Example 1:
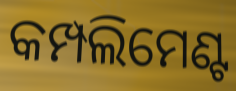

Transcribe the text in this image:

କମ୍ପଲିମେଣ୍ଟ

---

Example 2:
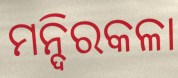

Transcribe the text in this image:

ମନ୍ଦିରକଳା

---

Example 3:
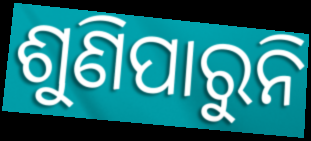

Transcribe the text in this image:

ଶୁଣିପାରୁନି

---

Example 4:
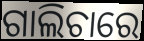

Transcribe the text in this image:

ଗାଲିଚାରେ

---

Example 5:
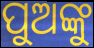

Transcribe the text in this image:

ପୁଅଙ୍କୁ